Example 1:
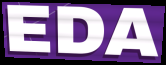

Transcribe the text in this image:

EDA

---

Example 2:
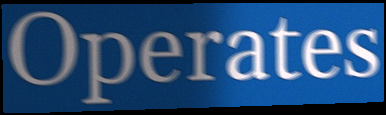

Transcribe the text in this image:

Operates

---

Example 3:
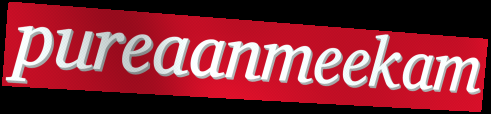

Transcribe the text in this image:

pureaanmeekam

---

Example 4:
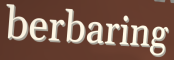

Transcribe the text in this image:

berbaring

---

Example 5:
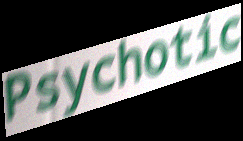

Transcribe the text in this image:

Psychotic